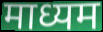
माध्यम